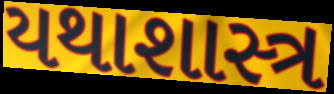
યથાશાસ્‍ત્ર